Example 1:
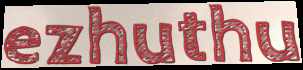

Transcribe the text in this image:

ezhuthu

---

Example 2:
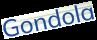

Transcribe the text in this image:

Gondola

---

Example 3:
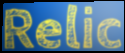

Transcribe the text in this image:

Relic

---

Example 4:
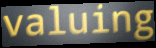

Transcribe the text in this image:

valuing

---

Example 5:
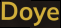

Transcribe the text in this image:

Doye